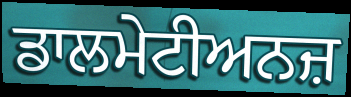
ਡਾਲਮੇਟੀਅਨਜ਼